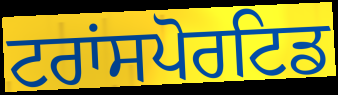
ਟਰਾਂਸਪੋਰਟਿਡ